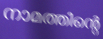
നാമത്തിന്റെ